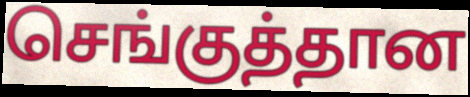
செங்குத்தான